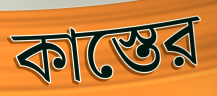
কাস্তের